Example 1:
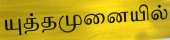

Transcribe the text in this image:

யுத்தமுனையில்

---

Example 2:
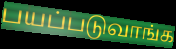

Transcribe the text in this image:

பயப்படுவாங்க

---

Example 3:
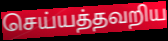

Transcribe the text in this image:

செய்யத்தவறிய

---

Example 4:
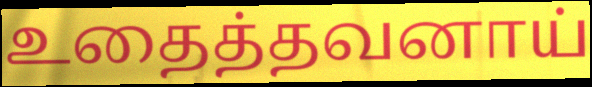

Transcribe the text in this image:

உதைத்தவனாய்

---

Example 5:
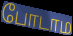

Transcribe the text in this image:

போடாம